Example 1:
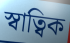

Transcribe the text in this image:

স্বাত্বিক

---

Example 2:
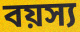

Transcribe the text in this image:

বয়স্য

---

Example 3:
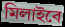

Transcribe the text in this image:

মিলাইবে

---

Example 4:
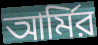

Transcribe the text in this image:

আর্মির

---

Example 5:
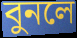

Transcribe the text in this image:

বুনলে